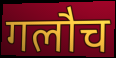
गलौच